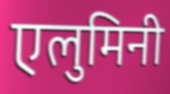
एलुमिनी